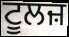
ਟੂਲਜ਼